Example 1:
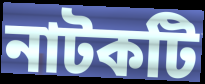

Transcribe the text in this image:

নাটকটি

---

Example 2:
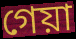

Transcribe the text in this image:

গেয়া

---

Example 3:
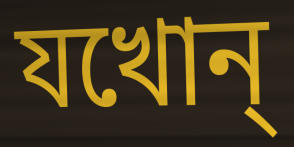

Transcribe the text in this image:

যখোন্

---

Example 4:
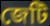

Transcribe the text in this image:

জেটি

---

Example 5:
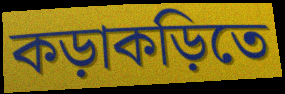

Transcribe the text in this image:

কড়াকড়িতে